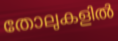
തോലുകളിൽ